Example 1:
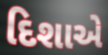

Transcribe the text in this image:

દિશાએ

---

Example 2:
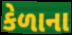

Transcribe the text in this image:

કેળાના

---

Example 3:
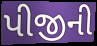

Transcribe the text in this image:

પીજીની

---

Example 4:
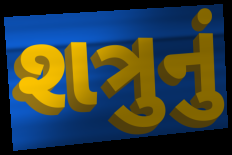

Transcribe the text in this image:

શત્રુનું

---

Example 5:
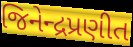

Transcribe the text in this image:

જિનેન્દ્રપ્રણીત